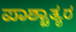
ಪಾಶ್ಚಾತ್ಯರ